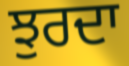
ਝੁਰਦਾ